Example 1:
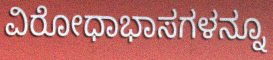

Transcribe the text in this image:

ವಿರೋಧಾಭಾಸಗಳನ್ನೂ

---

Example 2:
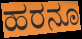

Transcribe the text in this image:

ಹರನೂ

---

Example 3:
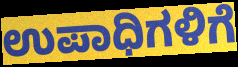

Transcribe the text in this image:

ಉಪಾಧಿಗಳಿಗೆ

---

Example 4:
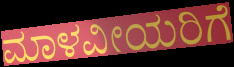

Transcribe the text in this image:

ಮಾಳವೀಯರಿಗೆ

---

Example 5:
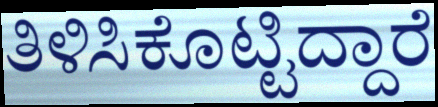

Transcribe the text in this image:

ತಿಳಿಸಿಕೊಟ್ಟಿದ್ದಾರೆ